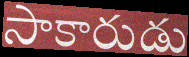
సాకారుడు